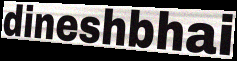
dineshbhai